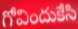
గోవిందుకేసి